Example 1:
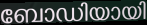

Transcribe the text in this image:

ബോഡിയായി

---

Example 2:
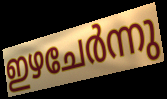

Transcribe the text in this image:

ഇഴചേർന്നു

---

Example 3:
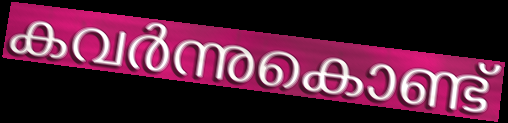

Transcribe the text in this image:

കവർന്നുകൊണ്ട്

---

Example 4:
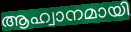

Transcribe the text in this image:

ആഹ്വാനമായി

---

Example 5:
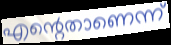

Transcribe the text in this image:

എന്റെതാണെന്ന്